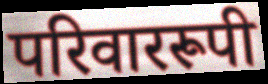
परिवाररूपी